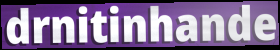
drnitinhande